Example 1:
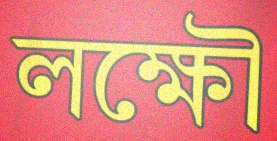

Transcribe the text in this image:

লক্ষৌ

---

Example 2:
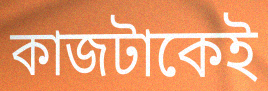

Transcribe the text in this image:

কাজটাকেই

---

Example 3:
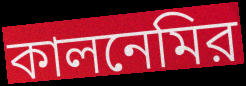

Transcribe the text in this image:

কালনেমির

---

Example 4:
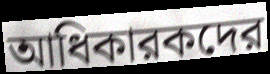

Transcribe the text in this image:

আধিকারকদের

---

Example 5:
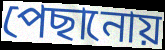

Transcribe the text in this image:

পেছানোয়